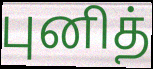
புனித்